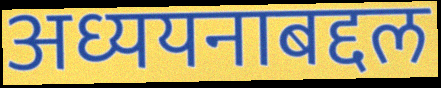
अध्ययनाबद्दल